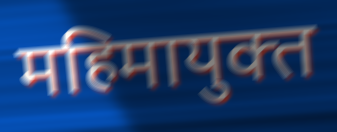
महिमायुक्‍त